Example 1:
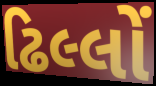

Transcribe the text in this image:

ઢિલ્લોં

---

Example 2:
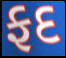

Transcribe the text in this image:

ફદ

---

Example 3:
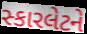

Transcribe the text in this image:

સ્કારલેટને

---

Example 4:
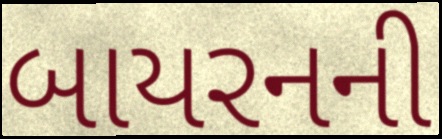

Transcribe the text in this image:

બાયરનની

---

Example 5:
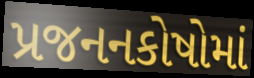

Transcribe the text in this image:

પ્રજનનકોષોમાં